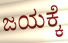
ಜಯಕ್ಕೆ